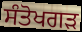
ਸੰਤੋਖਗੜ